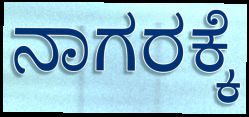
ನಾಗರಕ್ಕೆ